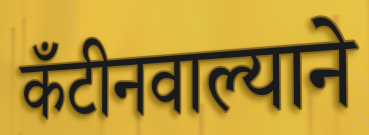
कँटीनवाल्याने